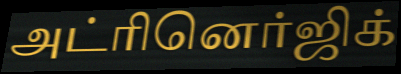
அட்ரினெர்ஜிக்